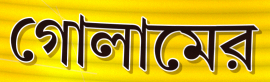
গোলামের